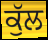
ਕੁੱਲ